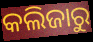
କଲିଜାରୁ